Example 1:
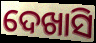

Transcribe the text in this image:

ଦେଖାସି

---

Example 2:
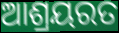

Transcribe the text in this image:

ଆଶ୍ରୟରତ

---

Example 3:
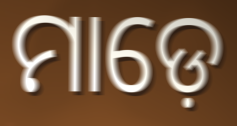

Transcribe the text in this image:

ମାଡ଼େ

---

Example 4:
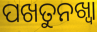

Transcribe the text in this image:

ପଖତୁନଖ୍ୱା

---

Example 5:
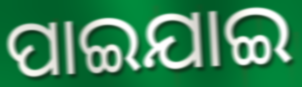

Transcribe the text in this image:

ପାଇଯାଇ